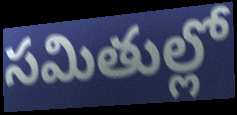
సమితుల్లో